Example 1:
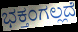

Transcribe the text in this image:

ಭಕ್ತಂಗಲ್ಲದೆ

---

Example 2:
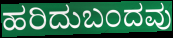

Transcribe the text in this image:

ಹರಿದುಬಂದವು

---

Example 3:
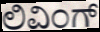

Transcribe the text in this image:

ಲಿವಿಂಗ್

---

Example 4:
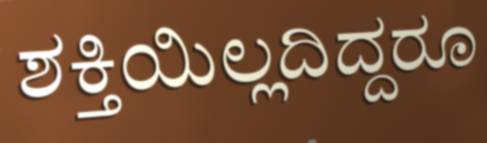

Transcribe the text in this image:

ಶಕ್ತಿಯಿಲ್ಲದಿದ್ದರೂ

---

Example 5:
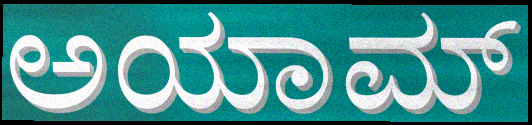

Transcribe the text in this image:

ಅಯಾಮ್